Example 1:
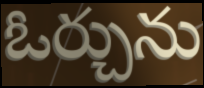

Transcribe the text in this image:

ఓర్చును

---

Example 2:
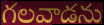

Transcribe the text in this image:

గలవాడను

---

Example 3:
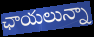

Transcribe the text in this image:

ఛాయలున్నా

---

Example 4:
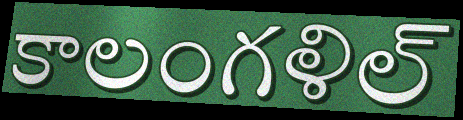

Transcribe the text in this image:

కాలంగళిల్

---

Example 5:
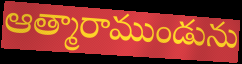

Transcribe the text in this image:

ఆత్మారాముండును